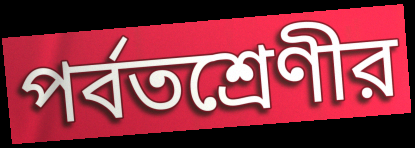
পর্বতশ্রেণীর